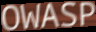
OWASP